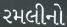
રમલીનો